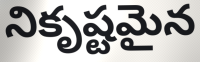
నికృష్టమైన